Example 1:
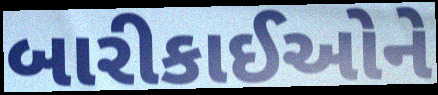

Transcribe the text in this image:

બારીકાઈઓને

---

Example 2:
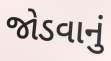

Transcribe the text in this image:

જોડવાનું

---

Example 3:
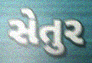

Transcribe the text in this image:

સેતુર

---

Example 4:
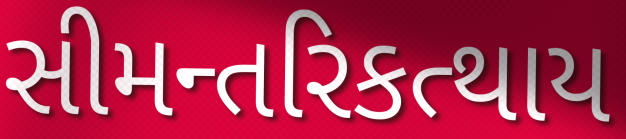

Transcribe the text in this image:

સીમન્તરિકત્થાય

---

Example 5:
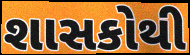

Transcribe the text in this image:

શાસકોથી